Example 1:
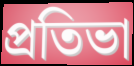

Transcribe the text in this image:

প্ৰতিভা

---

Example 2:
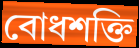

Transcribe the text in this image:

বোধশক্তি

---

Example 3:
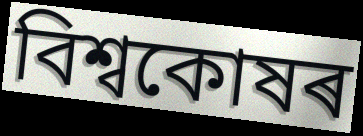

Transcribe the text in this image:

বিশ্বকোষৰ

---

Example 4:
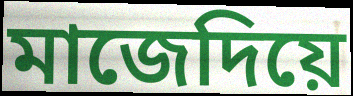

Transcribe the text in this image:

মাজেদিয়ে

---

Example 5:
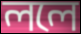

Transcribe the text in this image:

ললে